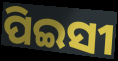
ପିଇସୀ